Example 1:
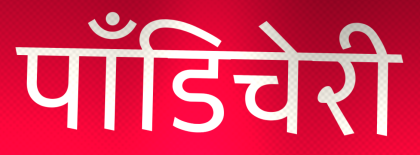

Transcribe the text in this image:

पॉंडिचेरी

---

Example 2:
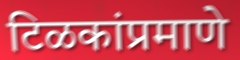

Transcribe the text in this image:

टिळकांप्रमाणे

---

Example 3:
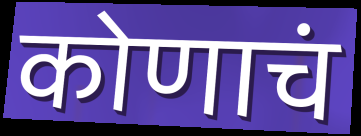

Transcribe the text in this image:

कोणाचं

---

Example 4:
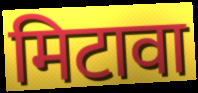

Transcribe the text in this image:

मिटावा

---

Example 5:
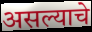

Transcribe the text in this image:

असल्याचे